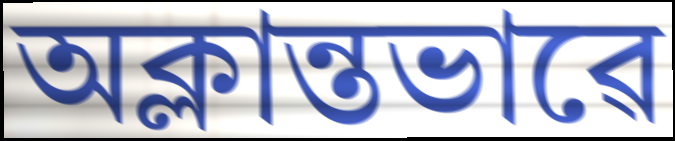
অক্লান্তভাৱে